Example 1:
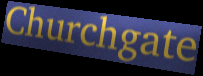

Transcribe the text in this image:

Churchgate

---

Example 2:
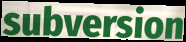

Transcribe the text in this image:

subversion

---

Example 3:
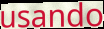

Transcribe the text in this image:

usando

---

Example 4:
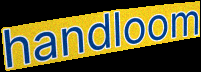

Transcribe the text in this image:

handloom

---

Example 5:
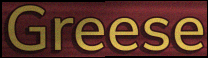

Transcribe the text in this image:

Greese